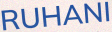
RUHANI